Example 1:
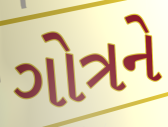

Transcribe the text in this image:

ગોત્રને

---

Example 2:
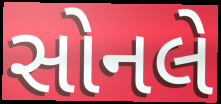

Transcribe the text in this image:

સોનલે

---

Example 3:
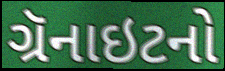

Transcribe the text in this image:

ગ્રૅનાઇટનો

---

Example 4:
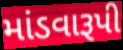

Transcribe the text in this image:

માંડવારૂપી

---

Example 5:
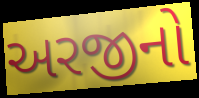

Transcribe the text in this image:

અરજીનો